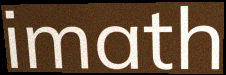
imath